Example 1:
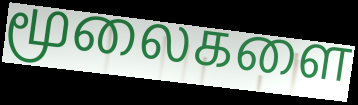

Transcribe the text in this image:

மூலைகளை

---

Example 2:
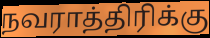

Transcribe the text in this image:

நவராத்திரிக்கு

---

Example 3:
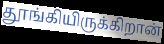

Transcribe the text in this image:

தூங்கியிருக்கிறான்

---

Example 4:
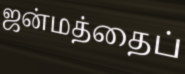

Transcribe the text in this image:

ஜன்மத்தைப்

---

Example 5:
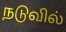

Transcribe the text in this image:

நடுவில்